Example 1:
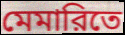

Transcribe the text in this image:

মেমারিতে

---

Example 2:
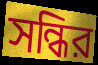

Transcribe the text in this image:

সন্ধির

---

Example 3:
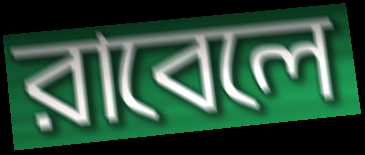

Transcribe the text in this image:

রাবেলে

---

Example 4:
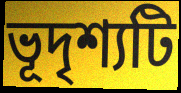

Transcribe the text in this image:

ভূদৃশ্যটি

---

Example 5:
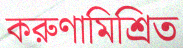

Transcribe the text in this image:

করুণামিশ্রিত